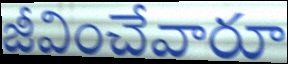
జీవించేవారూ